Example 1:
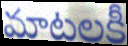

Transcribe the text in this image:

మాటలకీ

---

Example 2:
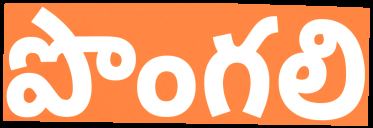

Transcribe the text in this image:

పొంగలి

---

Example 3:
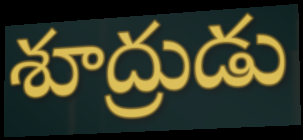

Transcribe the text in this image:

శూద్రుడు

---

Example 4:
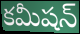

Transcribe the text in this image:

కమీషన్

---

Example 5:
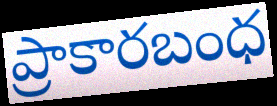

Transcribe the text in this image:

ప్రాకారబంధ